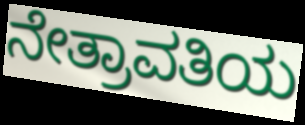
ನೇತ್ರಾವತಿಯ